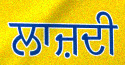
ਲਾਜ਼ਦੀ